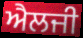
ਐਲਜੀ